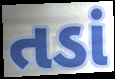
તડાં